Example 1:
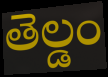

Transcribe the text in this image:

తెల్డం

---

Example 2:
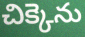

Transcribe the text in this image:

చిక్కెను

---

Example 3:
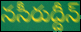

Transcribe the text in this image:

నసీరుద్దీన్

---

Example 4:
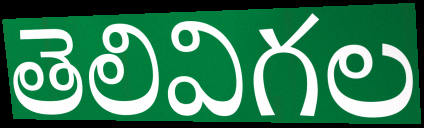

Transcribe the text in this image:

తెలివిగల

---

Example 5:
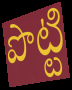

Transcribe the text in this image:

పొట్టి